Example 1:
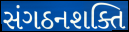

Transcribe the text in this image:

સંગઠનશક્તિ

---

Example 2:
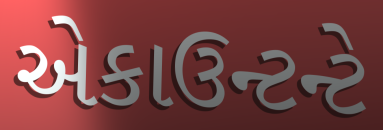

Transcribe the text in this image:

એકાઉન્ટન્ટે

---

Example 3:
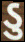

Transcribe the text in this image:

ડુ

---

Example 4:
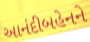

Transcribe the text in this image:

આનંદીબહેનને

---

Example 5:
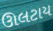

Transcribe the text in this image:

ઊલટાય